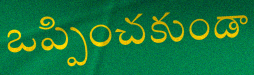
ఒప్పించకుండా